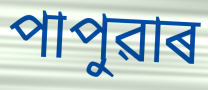
পাপুৱাৰ